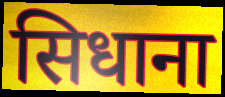
सिधाना